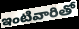
ఇంటివారితో